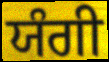
ਯੰਗੀ